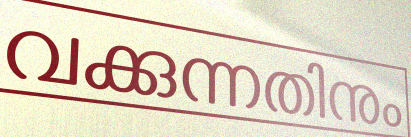
വക്കുന്നതിനും